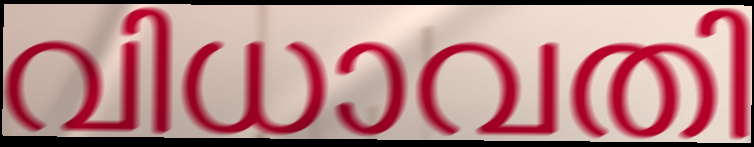
വിധാവതി